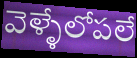
వెళ్ళేలోపలే